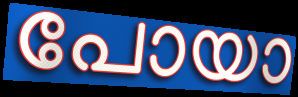
പോയാ